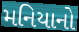
મનિયાનો